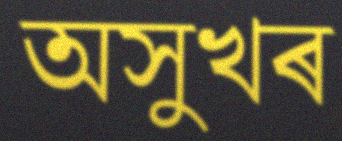
অসুখৰ